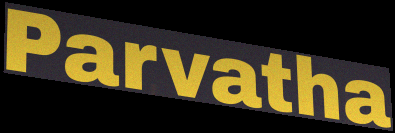
Parvatha